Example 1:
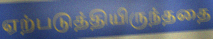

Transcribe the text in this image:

ஏற்படுத்தியிருந்ததை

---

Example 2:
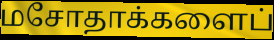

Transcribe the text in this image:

மசோதாக்களைப்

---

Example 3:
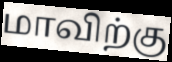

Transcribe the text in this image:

மாவிற்கு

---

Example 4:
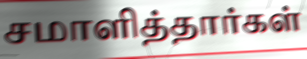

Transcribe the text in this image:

சமாளித்தார்கள்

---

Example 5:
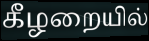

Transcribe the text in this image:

கீழறையில்